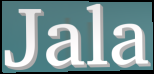
Jala